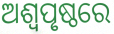
ଅଶ୍ଵପୃଷ୍ଠରେ